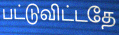
பட்டுவிட்டதே